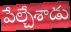
పేల్చేశాడు